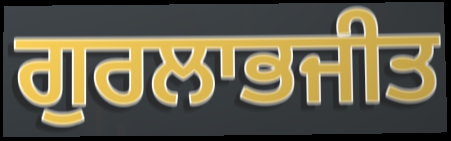
ਗੁਰਲਾਭਜੀਤ